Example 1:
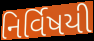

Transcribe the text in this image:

નિર્વિષયી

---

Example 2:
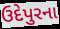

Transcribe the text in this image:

ઉદેપુરના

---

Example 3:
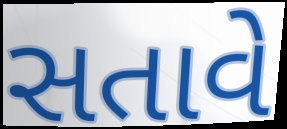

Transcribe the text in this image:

સતાવે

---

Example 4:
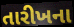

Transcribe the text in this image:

તારીખના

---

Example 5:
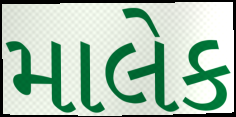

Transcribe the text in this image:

માલેક